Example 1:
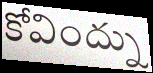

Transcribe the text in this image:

కోవింద్ను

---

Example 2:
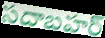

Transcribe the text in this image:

సదాబహర్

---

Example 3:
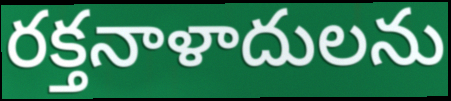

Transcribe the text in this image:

రక్తనాళాదులను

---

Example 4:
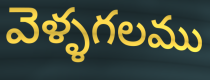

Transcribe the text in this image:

వెళ్ళగలము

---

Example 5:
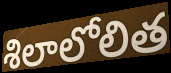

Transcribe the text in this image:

శిలాలోలిత